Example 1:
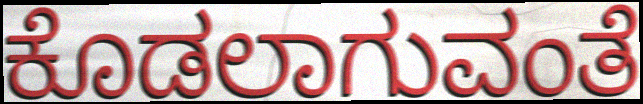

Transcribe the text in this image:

ಕೊಡಲಾಗುವಂತೆ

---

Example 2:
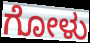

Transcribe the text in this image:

ಗೋಳು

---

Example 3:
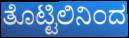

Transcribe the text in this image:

ತೊಟ್ಟಿಲಿನಿಂದ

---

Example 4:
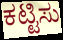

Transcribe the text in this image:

ಕಟ್ಟಿಸು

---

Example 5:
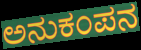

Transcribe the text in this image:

ಅನುಕಂಪನ